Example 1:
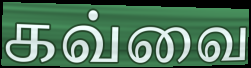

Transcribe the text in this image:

கவ்வை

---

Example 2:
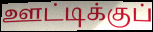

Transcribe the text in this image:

ஊட்டிக்குப்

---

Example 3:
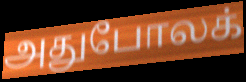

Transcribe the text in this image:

அதுபோலக்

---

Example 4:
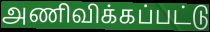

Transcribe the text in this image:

அணிவிக்கப்பட்டு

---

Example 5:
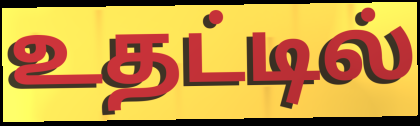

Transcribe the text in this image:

உதட்டில்